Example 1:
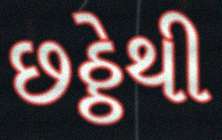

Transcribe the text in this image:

છઠ્ઠેથી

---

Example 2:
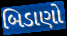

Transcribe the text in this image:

બિડાણો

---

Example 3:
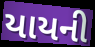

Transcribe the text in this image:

યાયની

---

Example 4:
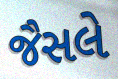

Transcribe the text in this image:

જૈસલે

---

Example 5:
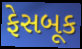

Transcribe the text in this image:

ફેસબૂક